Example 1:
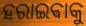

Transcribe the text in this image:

ହରାଇଵାକୁ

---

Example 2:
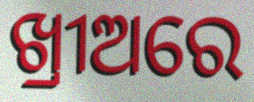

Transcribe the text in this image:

ଖ୍ରୀଅରେ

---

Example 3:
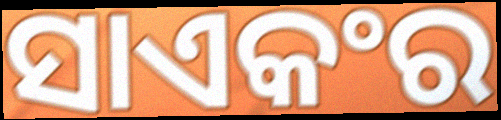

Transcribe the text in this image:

ସାଏକଂର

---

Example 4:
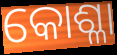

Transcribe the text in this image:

କୋଶ୍ଳା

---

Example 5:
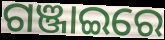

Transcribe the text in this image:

ଗଞ୍ଜାଇରେ